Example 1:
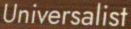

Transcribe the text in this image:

Universalist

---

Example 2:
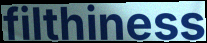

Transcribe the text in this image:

filthiness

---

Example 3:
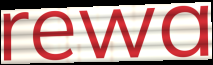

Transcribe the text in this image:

rewa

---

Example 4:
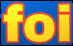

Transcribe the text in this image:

foi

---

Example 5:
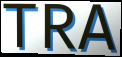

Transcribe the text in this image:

TRA